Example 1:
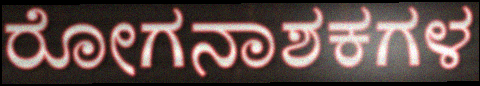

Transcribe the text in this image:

ರೋಗನಾಶಕಗಳ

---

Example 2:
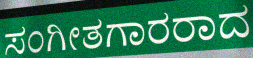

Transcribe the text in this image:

ಸಂಗೀತಗಾರರಾದ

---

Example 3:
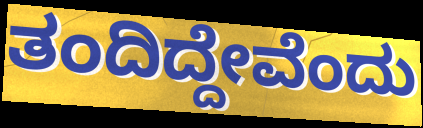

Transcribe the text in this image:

ತಂದಿದ್ದೇವೆಂದು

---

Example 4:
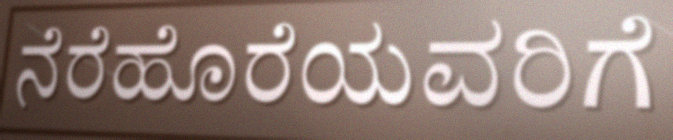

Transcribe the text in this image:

ನೆರೆಹೊರೆಯವರಿಗೆ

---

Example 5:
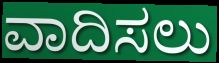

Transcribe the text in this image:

ವಾದಿಸಲು